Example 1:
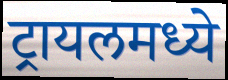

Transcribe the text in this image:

ट्रायलमध्ये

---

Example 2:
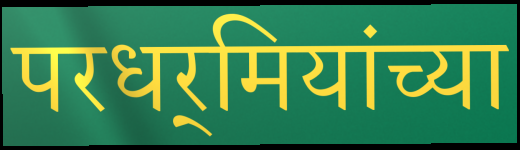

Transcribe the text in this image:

परधर्मियांच्या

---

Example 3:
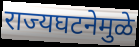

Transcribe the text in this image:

राज्यघटनेमुळे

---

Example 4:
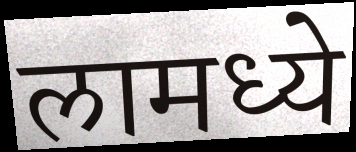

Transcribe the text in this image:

लामध्ये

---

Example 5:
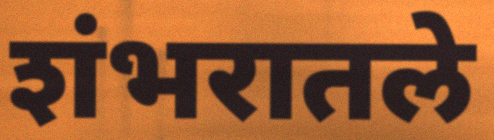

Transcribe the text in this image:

शंभरातले